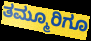
ತಮ್ಮೂರಿಗೂ